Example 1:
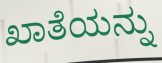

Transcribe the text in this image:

ಖಾತೆಯನ್ನು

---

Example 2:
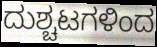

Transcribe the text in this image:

ದುಶ್ಚಟಗಳಿಂದ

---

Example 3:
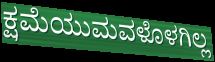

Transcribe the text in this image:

ಕ್ಷಮೆಯುಮವಳೊಳಗಿಲ್ಲ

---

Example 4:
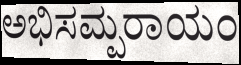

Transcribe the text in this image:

ಅಭಿಸಮ್ಪರಾಯಂ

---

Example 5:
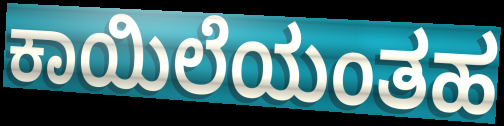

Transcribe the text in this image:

ಕಾಯಿಲೆಯಂತಹ